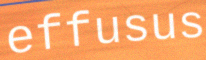
effusus